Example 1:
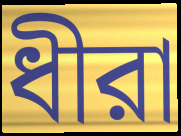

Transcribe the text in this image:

ধীরা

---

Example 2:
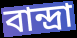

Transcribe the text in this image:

বান্দ্রা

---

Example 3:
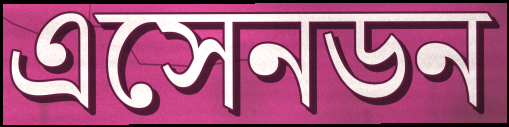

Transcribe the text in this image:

এসেনডন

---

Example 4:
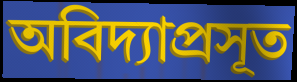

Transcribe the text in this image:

অবিদ্যাপ্রসূত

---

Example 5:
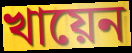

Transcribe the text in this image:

খায়েন